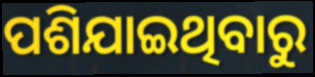
ପଶିଯାଇଥିବାରୁ